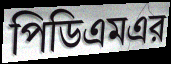
পিডিএমএর